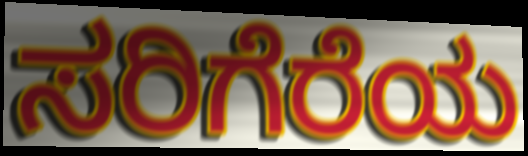
ಸರಿಗೆರೆಯ